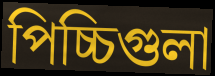
পিচ্চিগুলা